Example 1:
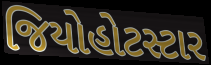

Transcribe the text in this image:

જિયોહોટસ્ટાર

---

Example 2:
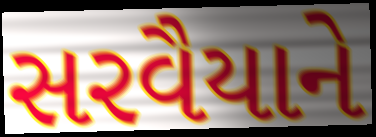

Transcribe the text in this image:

સરવૈયાને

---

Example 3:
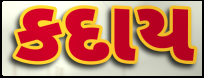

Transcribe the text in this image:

કદાય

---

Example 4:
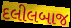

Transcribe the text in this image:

દલીલબાજ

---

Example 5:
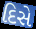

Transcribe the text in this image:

દિસે